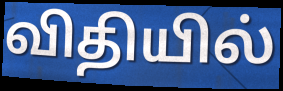
விதியில்